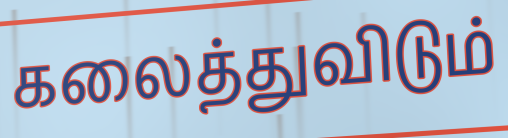
கலைத்துவிடும்